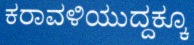
ಕರಾವಳಿಯುದ್ದಕ್ಕೂ